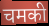
चमकी